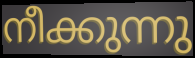
നീക്കുന്നു